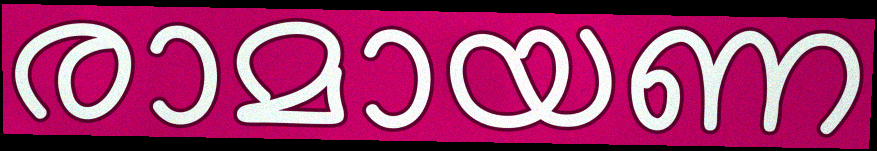
രാമായണ